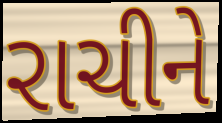
રાચીને